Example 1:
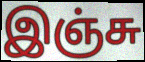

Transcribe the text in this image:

இஞ்சு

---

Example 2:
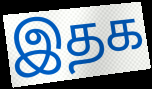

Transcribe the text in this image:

இதக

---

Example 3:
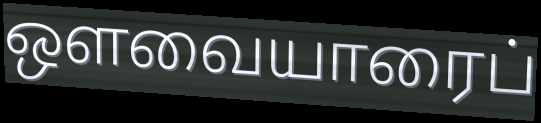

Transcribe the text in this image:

ஔவையாரைப்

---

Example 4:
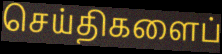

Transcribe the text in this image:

செய்திகளைப்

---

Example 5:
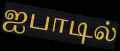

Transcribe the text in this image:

ஐபாடில்